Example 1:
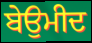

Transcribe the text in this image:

ਬੇਉਮੀਦ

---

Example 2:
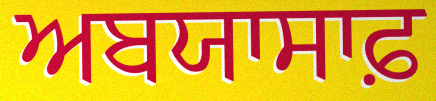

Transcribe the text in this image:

ਅਬਯਾਸਾਫ਼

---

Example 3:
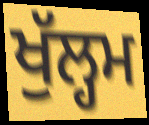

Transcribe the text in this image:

ਖੁੱਲ੍ਹਮ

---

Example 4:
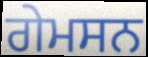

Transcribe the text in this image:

ਗੇਮਸਨ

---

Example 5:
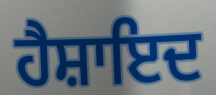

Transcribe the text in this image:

ਹੈਸ਼ਾਇਦ